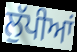
ਲੁੱਪੀਆਂ